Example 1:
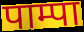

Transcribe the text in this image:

पाम्पा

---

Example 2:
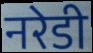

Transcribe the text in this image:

नरेडी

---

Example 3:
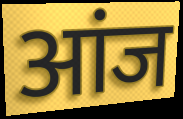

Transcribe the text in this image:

आंज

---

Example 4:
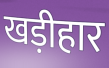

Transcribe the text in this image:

खड़ीहार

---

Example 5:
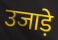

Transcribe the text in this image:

उजाड़े